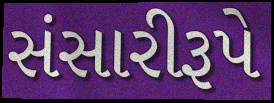
સંસારીરૂપે